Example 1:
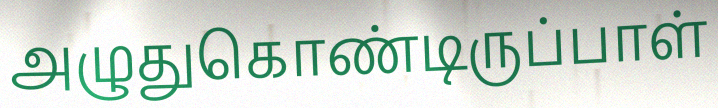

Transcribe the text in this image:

அழுதுகொண்டிருப்பாள்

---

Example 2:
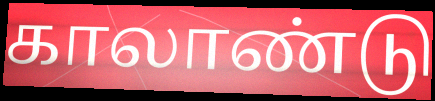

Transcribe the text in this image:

காலாண்டு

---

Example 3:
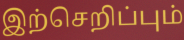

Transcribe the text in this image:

இற்செறிப்பும்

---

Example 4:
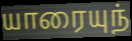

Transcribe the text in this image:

யாரையுந்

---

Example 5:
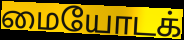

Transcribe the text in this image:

மையோடக்